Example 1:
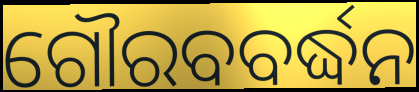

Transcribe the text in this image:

ଗୌରବବର୍ଦ୍ଧନ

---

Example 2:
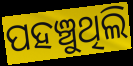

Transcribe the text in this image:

ପହଞ୍ଚୁଥିଲି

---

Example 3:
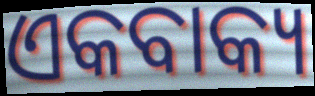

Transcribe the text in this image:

ଏକବାକ୍ୟ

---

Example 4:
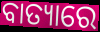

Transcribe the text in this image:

ବାତ୍ୟାରେ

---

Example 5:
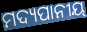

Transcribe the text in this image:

ମଦ୍ୟପାନୀୟ